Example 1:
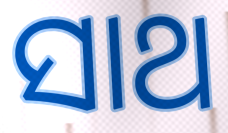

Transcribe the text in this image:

ସାଥ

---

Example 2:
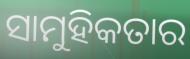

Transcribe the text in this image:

ସାମୁହିକତାର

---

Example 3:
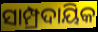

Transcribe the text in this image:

ସାମ୍ପ୍ରଦାୟିକ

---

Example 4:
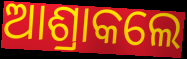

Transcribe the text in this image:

ଆଶ୍ରାକଲେ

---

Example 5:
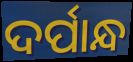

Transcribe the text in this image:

ଦର୍ପାନ୍ଧ